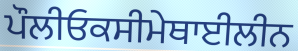
ਪੌਲੀਓਕਸੀਮੇਥਾਈਲੀਨ